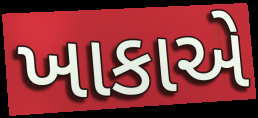
ખાકાએ